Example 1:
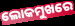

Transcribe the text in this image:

ଲୋକମୁଖରେ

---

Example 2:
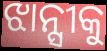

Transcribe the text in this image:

ଝାନ୍ସୀକୁ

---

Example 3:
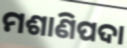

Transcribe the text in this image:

ମଶାଣିପଦା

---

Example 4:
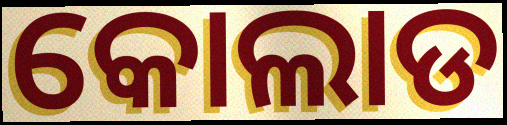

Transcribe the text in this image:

କୋଲାଡ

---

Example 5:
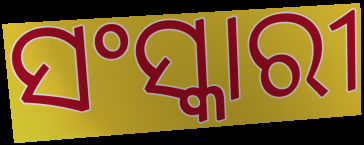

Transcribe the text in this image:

ସଂସ୍କାରୀ